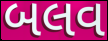
બલવ